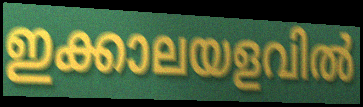
ഇക്കാലയളവിൽ